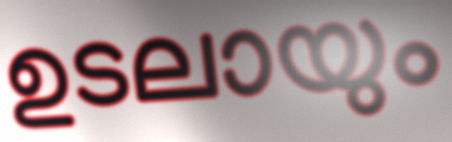
ഉടലായും